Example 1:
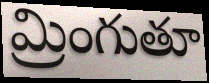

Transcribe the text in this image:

మ్రింగుతూ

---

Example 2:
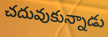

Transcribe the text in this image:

చదువుకున్నాడు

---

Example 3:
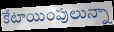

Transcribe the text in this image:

కేటాయింపులున్నా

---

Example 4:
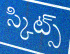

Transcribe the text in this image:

స్కిట్స్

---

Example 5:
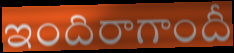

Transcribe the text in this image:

ఇందిరాగాందీ